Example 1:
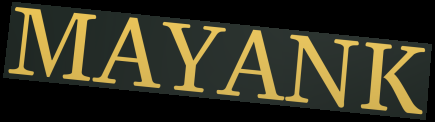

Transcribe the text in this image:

MAYANK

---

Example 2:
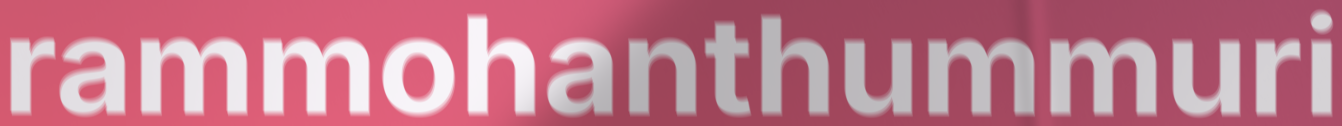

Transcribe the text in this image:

rammohanthummuri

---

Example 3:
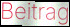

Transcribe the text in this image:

Beitrag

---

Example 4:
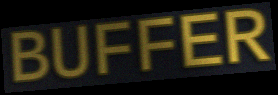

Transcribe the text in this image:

BUFFER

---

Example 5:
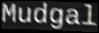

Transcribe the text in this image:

Mudgal